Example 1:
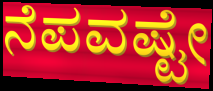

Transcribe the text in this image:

ನೆಪವಷ್ಟೇ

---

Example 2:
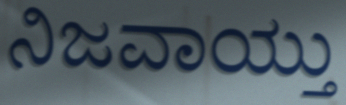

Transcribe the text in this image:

ನಿಜವಾಯ್ತು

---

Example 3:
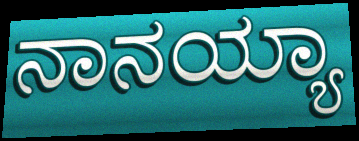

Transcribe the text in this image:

ನಾನಯ್ಯಾ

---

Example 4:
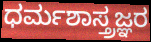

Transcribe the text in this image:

ಧರ್ಮಶಾಸ್ತ್ರಜ್ಞರ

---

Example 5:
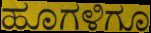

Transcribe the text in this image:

ಹೂಗಳಿಗೂ